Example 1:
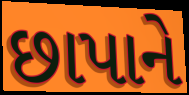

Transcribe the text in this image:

છાપાને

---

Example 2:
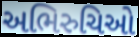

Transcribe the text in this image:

અભિરુચિઓ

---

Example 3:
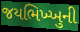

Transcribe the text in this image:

જયભિખ્ખુની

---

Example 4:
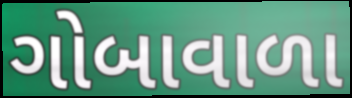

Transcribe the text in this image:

ગોબાવાળા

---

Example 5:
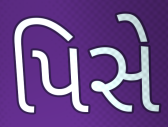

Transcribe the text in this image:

પિસે